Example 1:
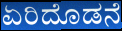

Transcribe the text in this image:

ಏರಿದೊಡನೆ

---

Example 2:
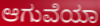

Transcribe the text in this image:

ಆಗುವೆಯಾ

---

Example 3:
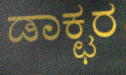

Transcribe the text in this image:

ಡಾಕ್ಟರ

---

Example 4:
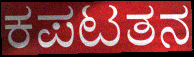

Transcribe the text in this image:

ಕಪಟತನ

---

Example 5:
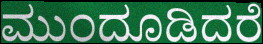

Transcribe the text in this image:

ಮುಂದೂಡಿದರೆ